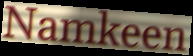
Namkeen